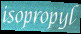
isopropyl